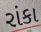
રાંકા